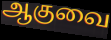
ஆகுவை